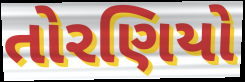
તોરણિયો